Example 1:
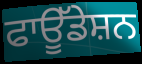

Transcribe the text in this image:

ਫਾਊੱਡੇਸ਼ਨ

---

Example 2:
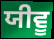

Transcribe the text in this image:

ਯੀਵੂ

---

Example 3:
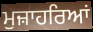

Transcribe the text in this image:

ਮੁਜ਼ਾਹਰਿਆਂ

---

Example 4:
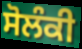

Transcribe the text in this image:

ਸੋਲੰਕੀ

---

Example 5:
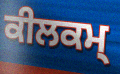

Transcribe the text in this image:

ਕੀਲਕਮ੍